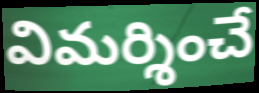
విమర్శించే